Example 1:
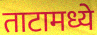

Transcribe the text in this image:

ताटामध्ये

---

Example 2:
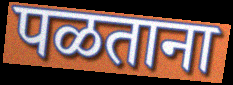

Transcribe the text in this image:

पळताना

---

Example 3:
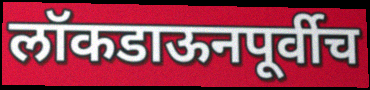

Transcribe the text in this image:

लॉकडाऊनपूर्वीच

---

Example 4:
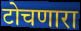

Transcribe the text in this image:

टोचणारा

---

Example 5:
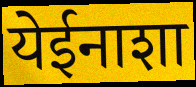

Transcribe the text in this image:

येईनाशा